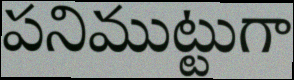
పనిముట్టుగా